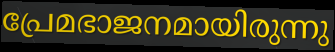
പ്രേമഭാജനമായിരുന്നു